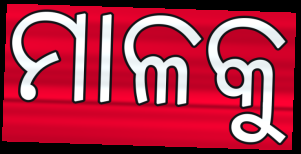
ମାଳକୁ